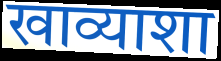
खाव्याशा